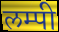
लम्पी